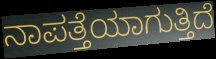
ನಾಪತ್ತೆಯಾಗುತ್ತಿದೆ